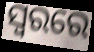
ସ୍ୱରରେ